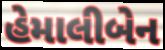
હેમાલીબેન